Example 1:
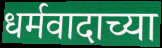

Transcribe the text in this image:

धर्मवादाच्या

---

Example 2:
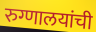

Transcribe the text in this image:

रुग्णालयांची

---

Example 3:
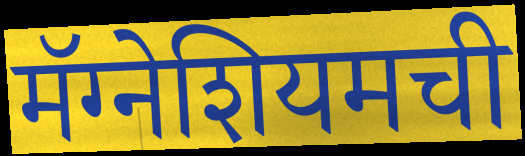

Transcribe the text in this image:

मॅग्नेशियमची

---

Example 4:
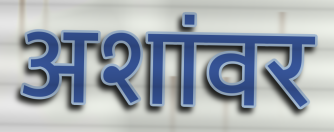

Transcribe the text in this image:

अशांवर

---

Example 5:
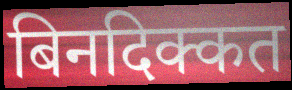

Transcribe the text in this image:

बिनदिक्कत